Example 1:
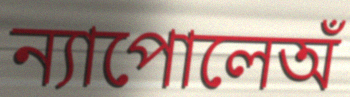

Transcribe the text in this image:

ন্যাপোলেঅঁ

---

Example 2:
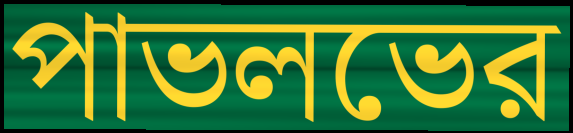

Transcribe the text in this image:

পাভলভের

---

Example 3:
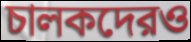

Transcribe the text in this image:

চালকদেরও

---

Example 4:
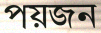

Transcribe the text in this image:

পয়জন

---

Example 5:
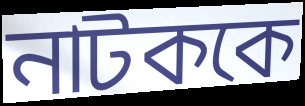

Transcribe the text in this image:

নাটককে